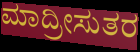
ಮಾದ್ರೀಸುತರ